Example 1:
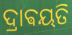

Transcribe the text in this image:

ଦ୍ରାଵୟତି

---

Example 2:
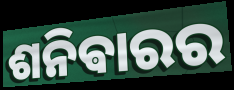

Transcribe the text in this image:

ଶନିଵାରର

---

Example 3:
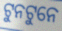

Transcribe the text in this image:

ଟୁନଟୁନେ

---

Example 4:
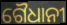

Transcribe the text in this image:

ଗୈଧାନୀ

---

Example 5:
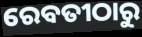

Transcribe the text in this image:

ରେବତୀଠାରୁ